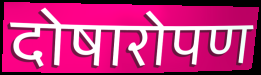
दोषारोपण